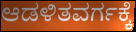
ಆಡಳಿತವರ್ಗಕ್ಕೆ